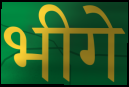
भीगे